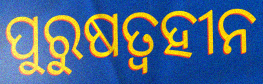
ପୁରୁଷତ୍ୱହୀନ